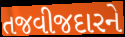
તજવીજદારને